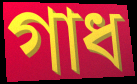
গাধ